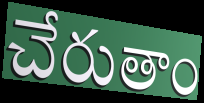
చేరుతాం